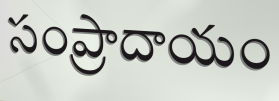
సంప్రాదాయం